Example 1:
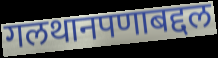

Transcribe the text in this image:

गलथानपणाबद्दल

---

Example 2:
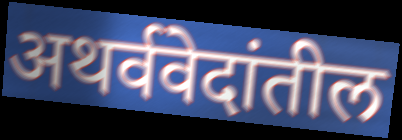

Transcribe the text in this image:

अथर्ववेदांतील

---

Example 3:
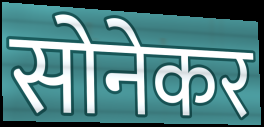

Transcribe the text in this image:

सोनेकर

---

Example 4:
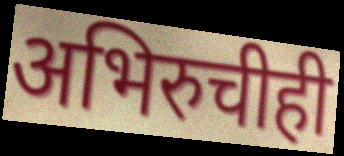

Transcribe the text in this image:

अभिरुचीही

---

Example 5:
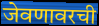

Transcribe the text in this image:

जेवणावरची